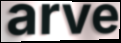
arve